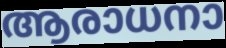
ആരാധനാ